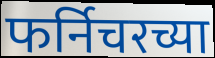
फर्निचरच्या